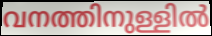
വനത്തിനുള്ളിൽ